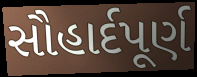
સૌહાર્દપૂર્ણ